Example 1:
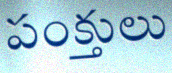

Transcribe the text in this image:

పంక్తులు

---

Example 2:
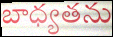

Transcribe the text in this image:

బాధ్యతను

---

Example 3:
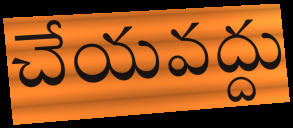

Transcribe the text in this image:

చేయవద్దు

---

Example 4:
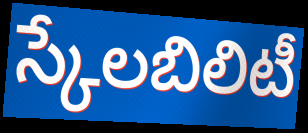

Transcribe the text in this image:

స్కేలబిలిటీ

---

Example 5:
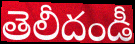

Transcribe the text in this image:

తెలీదండీ